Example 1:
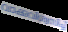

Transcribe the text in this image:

വാക്കുവിശ്വസിച്ച്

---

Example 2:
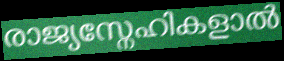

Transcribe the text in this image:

രാജ്യസ്നേഹികളാൽ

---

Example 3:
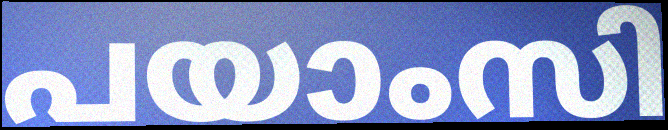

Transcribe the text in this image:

പയാംസി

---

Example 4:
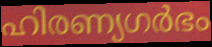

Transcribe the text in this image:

ഹിരണ്യഗർഭം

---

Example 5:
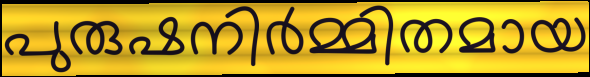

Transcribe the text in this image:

പുരുഷനിർമ്മിതമായ